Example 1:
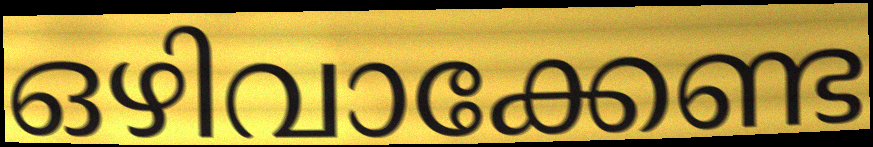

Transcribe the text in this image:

ഒഴിവാക്കേണ്ട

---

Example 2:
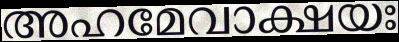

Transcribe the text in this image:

അഹമേവാക്ഷയഃ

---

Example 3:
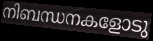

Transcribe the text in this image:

നിബന്ധനകളോടു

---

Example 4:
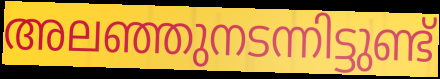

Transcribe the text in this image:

അലഞ്ഞുനടന്നിട്ടുണ്ട്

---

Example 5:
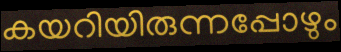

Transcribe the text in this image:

കയറിയിരുന്നപ്പോഴും